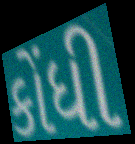
કોંધી